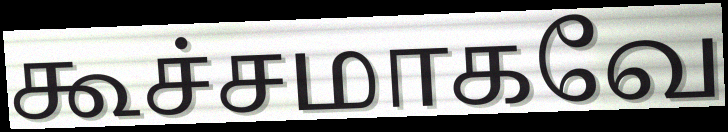
கூச்சமாகவே